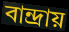
বান্দ্রায়